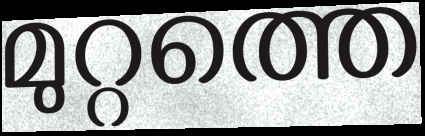
മുറ്റത്തെ